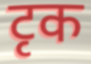
टृक